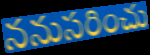
ననుసరించు